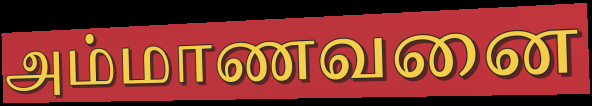
அம்மாணவனை